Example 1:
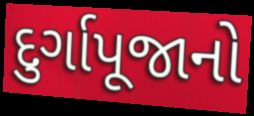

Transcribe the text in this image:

દુર્ગાપૂજાનો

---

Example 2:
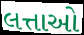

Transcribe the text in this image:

લત્તાઓ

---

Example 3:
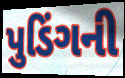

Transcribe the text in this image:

પુડિંગની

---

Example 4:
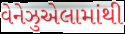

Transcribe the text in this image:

વેનેઝુએલામાંથી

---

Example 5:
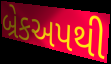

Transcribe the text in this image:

બ્રેકઅપથી